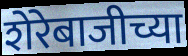
शेरेबाजीच्या